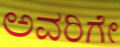
ಅವರಿಗೇ